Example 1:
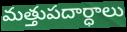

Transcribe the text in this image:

మత్తుపదార్ధాలు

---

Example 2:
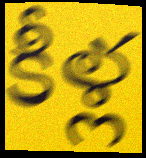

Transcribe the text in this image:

కీళ్ల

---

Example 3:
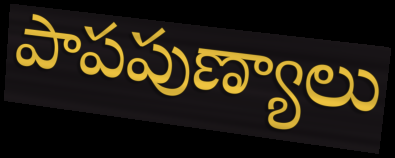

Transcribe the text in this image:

పాపపుణ్యాలు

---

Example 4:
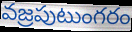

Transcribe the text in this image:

వజ్రపుటుంగరం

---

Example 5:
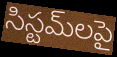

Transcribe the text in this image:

సిస్టమ్‌లపై